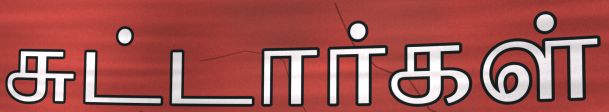
சுட்டார்கள்